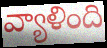
వ్యాళింది